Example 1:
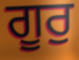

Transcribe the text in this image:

ਗੂਰੁ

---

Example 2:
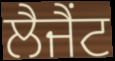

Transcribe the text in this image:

ਲੈਜੈਂਟ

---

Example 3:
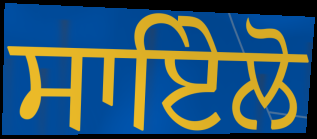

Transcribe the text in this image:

ਸਾਇੇਲੋ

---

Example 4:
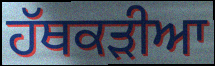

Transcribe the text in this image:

ਹੱਥਕੜੀਆ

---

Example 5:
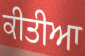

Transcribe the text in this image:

ਕੀਤੀਆ